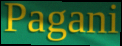
Pagani